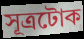
সূত্ৰটোক